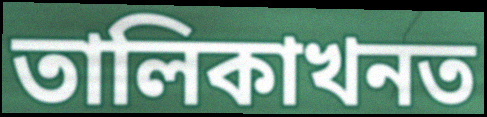
তালিকাখনত